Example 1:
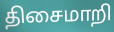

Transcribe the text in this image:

திசைமாறி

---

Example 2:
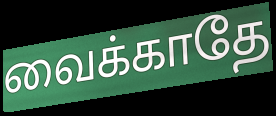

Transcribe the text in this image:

வைக்காதே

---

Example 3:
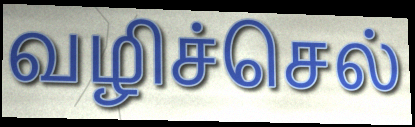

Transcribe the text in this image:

வழிச்செல்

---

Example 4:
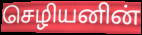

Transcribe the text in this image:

செழியனின்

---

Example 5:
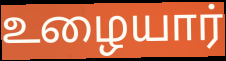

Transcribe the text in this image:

உழையார்